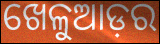
ଖେଳୁଆଡ଼ର